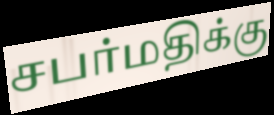
சபர்மதிக்கு